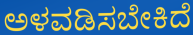
ಅಳವಡಿಸಬೇಕಿದೆ